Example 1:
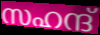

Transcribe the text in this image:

സഹന്ദ്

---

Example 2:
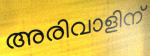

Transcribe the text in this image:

അരിവാളിന്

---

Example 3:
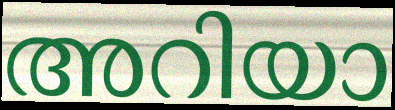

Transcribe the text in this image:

അറിയാ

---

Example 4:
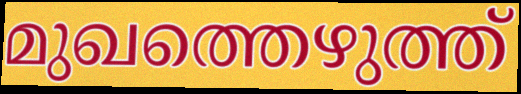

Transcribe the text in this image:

മുഖത്തെഴുത്ത്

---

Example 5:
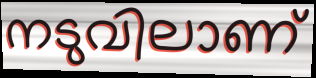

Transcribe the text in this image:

നടുവിലാണ്